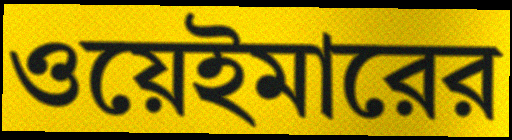
ওয়েইমারের